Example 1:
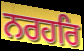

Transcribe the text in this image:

ਨਰਹਰਿ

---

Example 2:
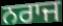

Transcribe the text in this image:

ਨਰਾਜ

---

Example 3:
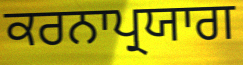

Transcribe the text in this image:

ਕਰਨਾਪ੍ਰਯਾਗ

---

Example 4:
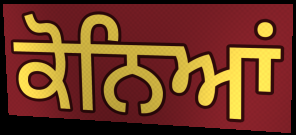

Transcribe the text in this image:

ਕੋਨਿਆਂ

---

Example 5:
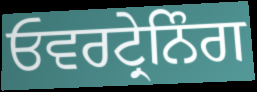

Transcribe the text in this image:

ਓਵਰਟ੍ਰੇਨਿੰਗ